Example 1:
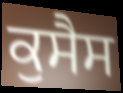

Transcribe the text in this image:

ਕੁਸੈਸ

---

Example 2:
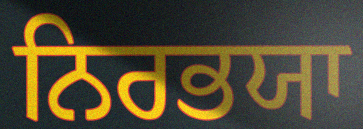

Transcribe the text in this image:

ਨਿਰਭਯਾ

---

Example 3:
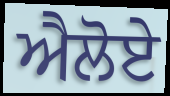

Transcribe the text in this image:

ਐਲੋਏ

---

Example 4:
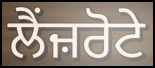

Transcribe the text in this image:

ਲੈਂਜ਼ਰੋਟੇ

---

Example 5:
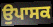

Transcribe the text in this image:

ਉਪਾਸਕ